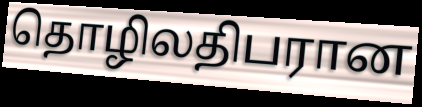
தொழிலதிபரான